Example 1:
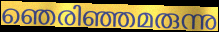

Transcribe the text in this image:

ഞെരിഞ്ഞമരുന്നു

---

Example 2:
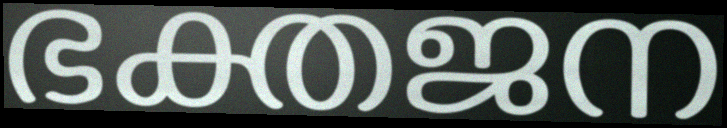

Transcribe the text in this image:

ഭക്തജന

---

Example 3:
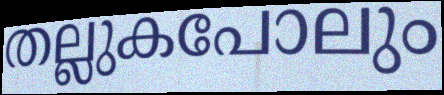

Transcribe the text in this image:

തല്ലുകപോലും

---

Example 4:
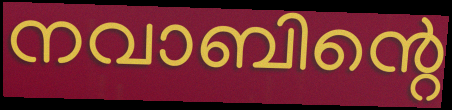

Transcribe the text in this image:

നവാബിന്റെ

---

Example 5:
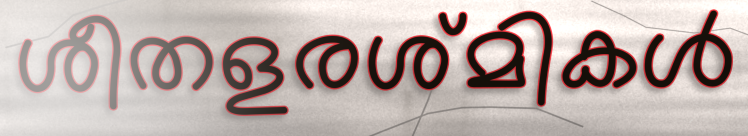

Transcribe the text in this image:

ശീതളരശ്മികൾ